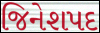
જિનેશપદ